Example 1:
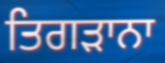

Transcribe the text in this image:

ਤਿਗੜਾਨਾ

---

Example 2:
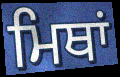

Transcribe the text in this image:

ਮਿਥਾਂ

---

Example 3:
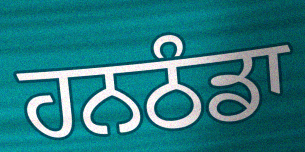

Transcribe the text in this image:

ਹਨਠੰਡਾ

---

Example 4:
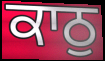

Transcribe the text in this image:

ਕਾਠੁ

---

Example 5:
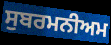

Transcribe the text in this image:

ਸੁਬਰਮਨੀਅਮ